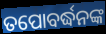
ତପୋବର୍ଦ୍ଧନଙ୍କ